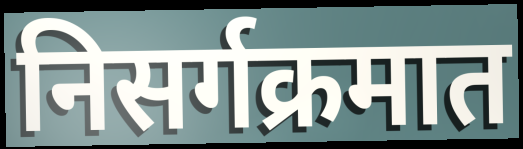
निसर्गक्रमात